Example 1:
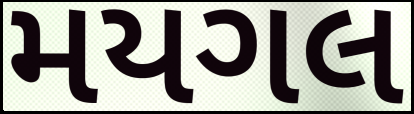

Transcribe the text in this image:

મયગલ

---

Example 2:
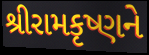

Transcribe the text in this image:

શ્રીરામકૃષ્ણને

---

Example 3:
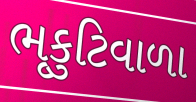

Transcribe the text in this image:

ભૃકુટિવાળા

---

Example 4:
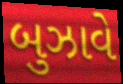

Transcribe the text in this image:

બુઝાવે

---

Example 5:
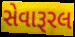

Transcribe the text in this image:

સેવારૂરલ